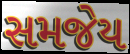
સમજેય